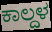
ಕಾಲ್ದಳ